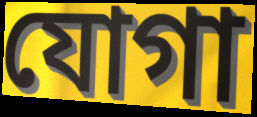
যোগা